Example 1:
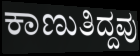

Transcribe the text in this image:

ಕಾಣುತಿದ್ದವು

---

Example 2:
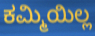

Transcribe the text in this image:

ಕಮ್ಮಿಯಿಲ್ಲ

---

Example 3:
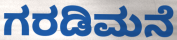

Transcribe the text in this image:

ಗರಡಿಮನೆ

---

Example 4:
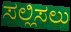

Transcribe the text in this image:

ಸಲ್ಲಿಸಲು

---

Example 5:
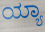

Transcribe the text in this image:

ಯ್ಯಾ